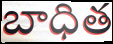
బాధిత